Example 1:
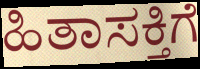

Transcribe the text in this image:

ಹಿತಾಸಕ್ತಿಗೆ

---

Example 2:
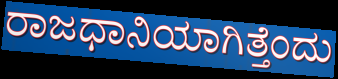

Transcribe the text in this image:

ರಾಜಧಾನಿಯಾಗಿತ್ತೆಂದು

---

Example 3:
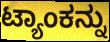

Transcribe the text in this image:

ಟ್ಯಾಂಕನ್ನು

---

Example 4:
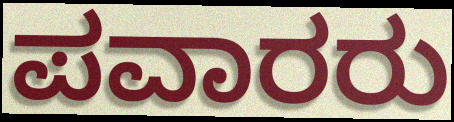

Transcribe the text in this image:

ಪವಾರರು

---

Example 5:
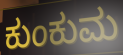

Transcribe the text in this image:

ಕುಂಕುಮ